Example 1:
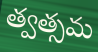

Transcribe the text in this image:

త్వత్సమ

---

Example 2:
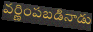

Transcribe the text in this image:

వర్ణింపబడినాడు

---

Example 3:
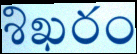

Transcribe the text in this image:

శిఖరం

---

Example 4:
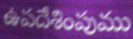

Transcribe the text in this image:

ఉపదేశింపుము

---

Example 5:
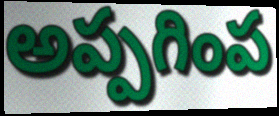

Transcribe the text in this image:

అప్పగింప